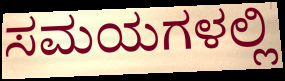
ಸಮಯಗಳಲ್ಲಿ